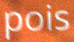
pois